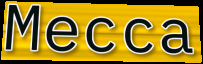
Mecca